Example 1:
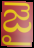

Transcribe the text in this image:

జై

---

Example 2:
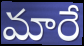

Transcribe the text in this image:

మారే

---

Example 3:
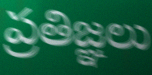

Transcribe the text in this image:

ప్రతిజ్ఞలు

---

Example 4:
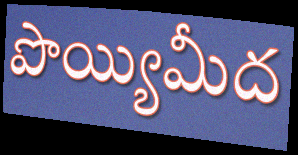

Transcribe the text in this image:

పొయ్యిమీద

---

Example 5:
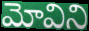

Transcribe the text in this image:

మోవిని